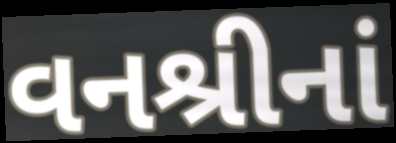
વનશ્રીનાં